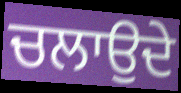
ਚਲਾਉਦੇ